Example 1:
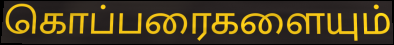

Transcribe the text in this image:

கொப்பரைகளையும்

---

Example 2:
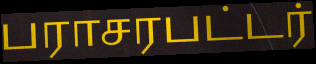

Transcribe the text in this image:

பராசரபட்டர்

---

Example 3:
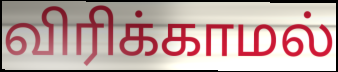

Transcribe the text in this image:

விரிக்காமல்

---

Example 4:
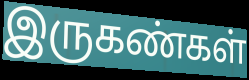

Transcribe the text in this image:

இருகண்கள்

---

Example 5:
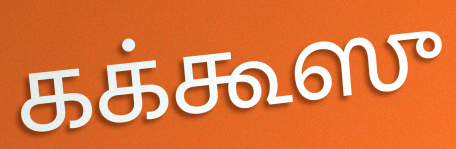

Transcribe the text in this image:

கக்கூஸு